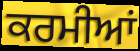
ਕਰਮੀਆਂ